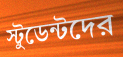
স্টুডেন্টদের